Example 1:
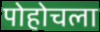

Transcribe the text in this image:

पोहोचला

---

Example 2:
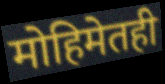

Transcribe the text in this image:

मोहिमेतही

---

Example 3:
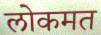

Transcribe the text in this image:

लोकमत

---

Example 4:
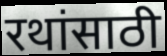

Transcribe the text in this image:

रथांसाठी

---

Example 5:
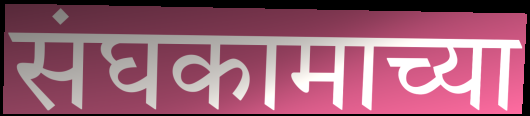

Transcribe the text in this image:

संघकामाच्या